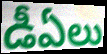
డీఏలు